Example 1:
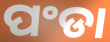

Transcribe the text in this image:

ପଂଡା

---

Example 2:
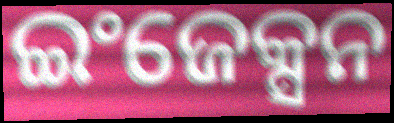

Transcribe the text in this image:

ଇଂଜେକ୍ସନ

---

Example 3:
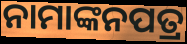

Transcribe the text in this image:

ନାମାଙ୍କନପତ୍ର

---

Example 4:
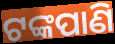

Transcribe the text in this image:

ଟଙ୍କପାଣି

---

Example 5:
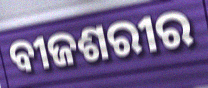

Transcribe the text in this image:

ବୀଜଶରୀର